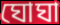
ঘোঘা